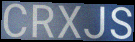
CRXJS